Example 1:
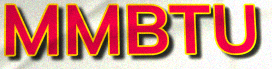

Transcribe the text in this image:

MMBTU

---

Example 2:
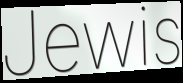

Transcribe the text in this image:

Jewis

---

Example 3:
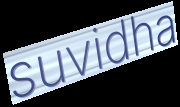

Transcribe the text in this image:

suvidha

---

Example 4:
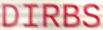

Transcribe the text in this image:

DIRBS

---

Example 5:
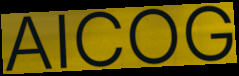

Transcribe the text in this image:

AICOG